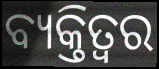
ବ୍ୟକ୍ତିତ୍ବର